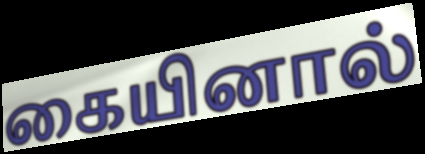
கையினால்